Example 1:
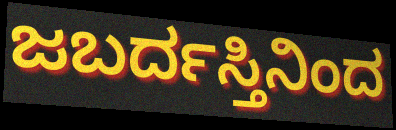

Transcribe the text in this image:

ಜಬರ್ದಸ್ತಿನಿಂದ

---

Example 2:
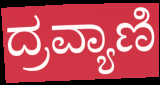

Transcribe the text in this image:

ದ್ರವ್ಯಾಣಿ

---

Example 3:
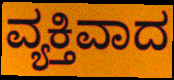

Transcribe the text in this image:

ವ್ಯಕ್ತಿವಾದ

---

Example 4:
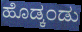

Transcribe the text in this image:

ಹೊಡ್ಕಂಡು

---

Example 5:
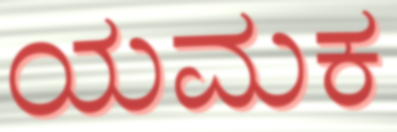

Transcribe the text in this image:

ಯಮಕ